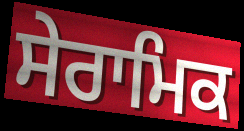
ਸੇਰਾਮਿਕ